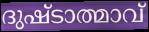
ദുഷ്ടാത്മാവ്